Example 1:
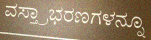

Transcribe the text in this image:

ವಸ್ತ್ರಾಭರಣಗಳನ್ನೂ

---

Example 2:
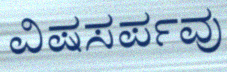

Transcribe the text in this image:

ವಿಷಸರ್ಪವು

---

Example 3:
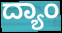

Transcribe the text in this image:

ದ್ಯಾಂ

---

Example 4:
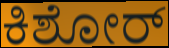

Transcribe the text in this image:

ಕಿಶೋರ್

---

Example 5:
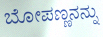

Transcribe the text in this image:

ಬೋಪಣ್ಣನನ್ನು